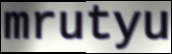
mrutyu